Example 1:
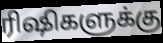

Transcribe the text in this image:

ரிஷிகளுக்கு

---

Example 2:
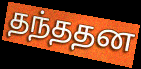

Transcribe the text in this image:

தந்ததன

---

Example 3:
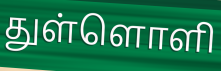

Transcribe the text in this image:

துள்ளொளி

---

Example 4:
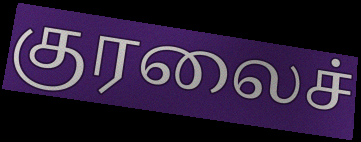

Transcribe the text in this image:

குரலைச்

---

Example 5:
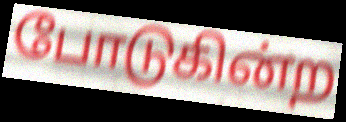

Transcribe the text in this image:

போடுகின்ற